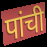
पांची